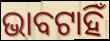
ଭାବଟାହିଁ